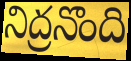
నిద్రనొంది